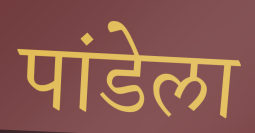
पांडेला